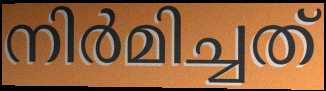
നിർമിച്ചത്